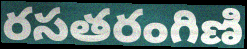
రసతరంగిణి